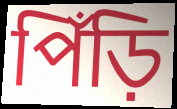
পিঁড়ি